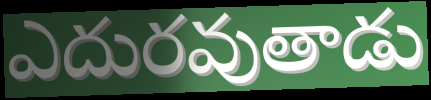
ఎదురవుతాడు